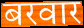
बरवार